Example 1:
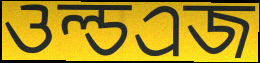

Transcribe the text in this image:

ওল্ডএজ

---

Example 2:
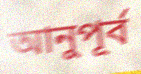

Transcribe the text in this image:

আনুপূর্ব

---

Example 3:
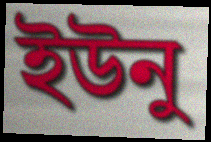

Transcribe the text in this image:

ইউনু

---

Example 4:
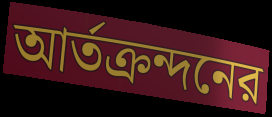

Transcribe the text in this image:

আর্তক্রন্দনের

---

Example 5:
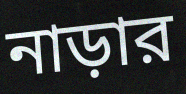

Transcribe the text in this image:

নাড়ার